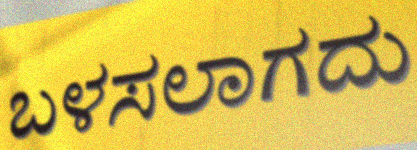
ಬಳಸಲಾಗದು